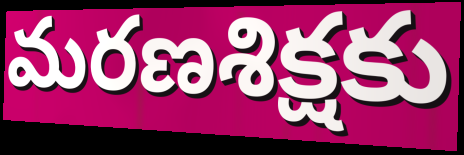
మరణశిక్షకు